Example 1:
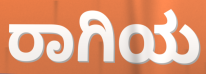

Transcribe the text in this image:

ರಾಗಿಯ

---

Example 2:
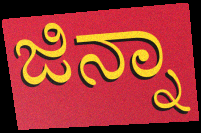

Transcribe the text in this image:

ಜಿನ್ನಾ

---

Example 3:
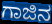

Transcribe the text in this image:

ಗಾಜಿನ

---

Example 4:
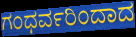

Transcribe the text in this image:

ಗಂಧರ್ವರಿಂದಾದ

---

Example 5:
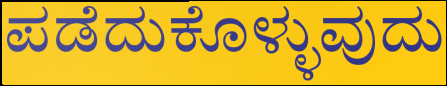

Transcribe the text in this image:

ಪಡೆದುಕೊಳ್ಳುವುದು